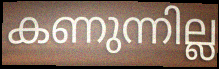
കണുന്നില്ല